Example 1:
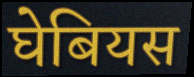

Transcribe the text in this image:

घेबियस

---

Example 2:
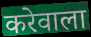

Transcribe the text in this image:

करेवाला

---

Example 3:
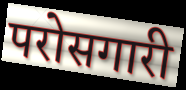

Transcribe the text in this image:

परोसगारी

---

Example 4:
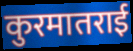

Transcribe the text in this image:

कुरमातराई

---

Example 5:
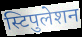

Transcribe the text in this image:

स्टिपुलेशन